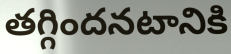
తగ్గిందనటానికి